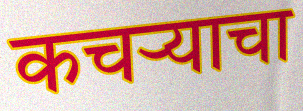
कचऱ्याचा